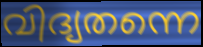
വിദ്യതന്നെ